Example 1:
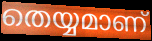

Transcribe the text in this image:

തെയ്യമാണ്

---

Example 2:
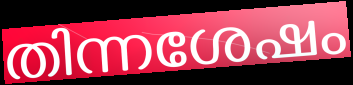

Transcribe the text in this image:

തിന്നശേഷം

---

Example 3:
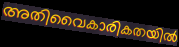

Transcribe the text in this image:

അതിവൈകാരികതയിൽ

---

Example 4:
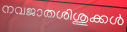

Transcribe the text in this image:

നവജാതശിശുക്കൾ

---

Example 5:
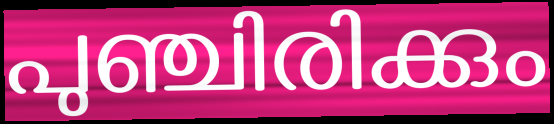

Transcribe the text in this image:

പുഞ്ചിരിക്കും